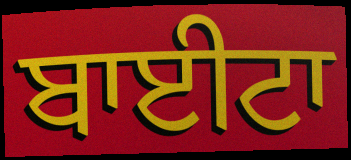
ਬਾਈਟਾ